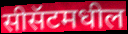
सीसॅटमधील